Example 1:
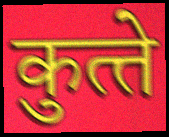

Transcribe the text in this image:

कुत्‍ते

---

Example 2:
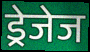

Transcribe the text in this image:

ड्रेजेज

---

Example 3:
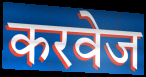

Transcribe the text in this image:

करवेज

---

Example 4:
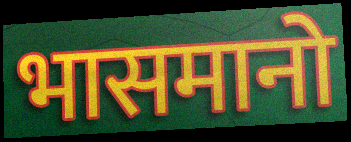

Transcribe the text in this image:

भासमानो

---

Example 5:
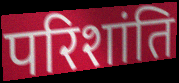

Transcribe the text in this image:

परिशांति